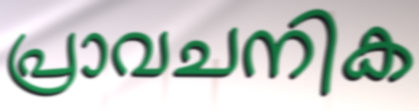
പ്രാവചനിക